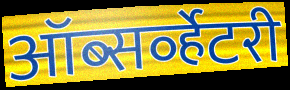
ऑब्सर्व्हेटरी